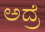
ಅದ್ರೆ